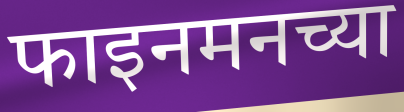
फाइनमनच्या